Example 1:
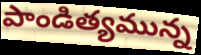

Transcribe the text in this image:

పాండిత్యమున్న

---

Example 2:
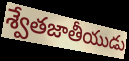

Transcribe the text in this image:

శ్వేతజాతీయుడు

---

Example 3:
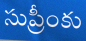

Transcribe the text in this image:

సుప్రీంకు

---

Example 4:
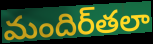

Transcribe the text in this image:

మందిర్‌తలా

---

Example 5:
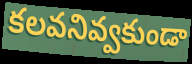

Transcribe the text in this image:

కలవనివ్వకుండా